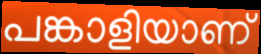
പങ്കാളിയാണ്